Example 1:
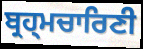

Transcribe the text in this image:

ਬ੍ਰਹ੍ਮਚਾਰਿਣੀ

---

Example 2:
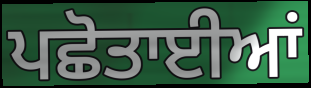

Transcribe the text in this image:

ਪਛੋਤਾਈਆਂ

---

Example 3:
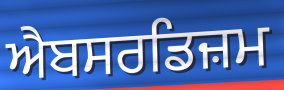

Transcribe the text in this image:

ਐਬਸਰਡਿਜ਼ਮ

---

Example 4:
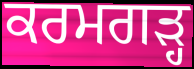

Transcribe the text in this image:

ਕਰਮਗੜ੍ਹ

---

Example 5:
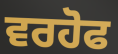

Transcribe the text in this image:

ਵਰਹੋਫ